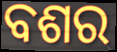
ବଶର